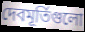
দেবমূর্তিগুলো